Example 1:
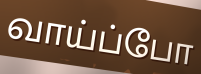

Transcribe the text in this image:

வாய்ப்போ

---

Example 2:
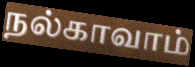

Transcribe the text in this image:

நல்காவாம்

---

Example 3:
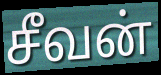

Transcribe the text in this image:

சீவன்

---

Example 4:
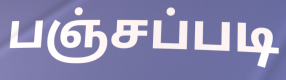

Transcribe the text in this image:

பஞ்சப்படி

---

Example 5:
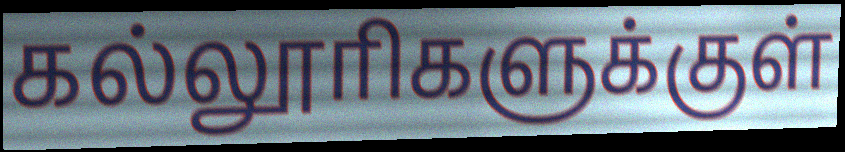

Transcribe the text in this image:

கல்லூரிகளுக்குள்